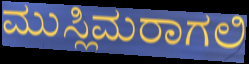
ಮುಸ್ಲಿಮರಾಗಲಿ